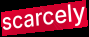
scarcely